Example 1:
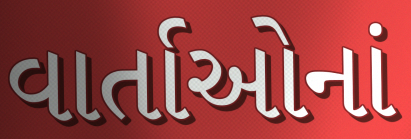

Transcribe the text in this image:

વાર્તાઓનાં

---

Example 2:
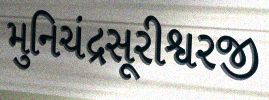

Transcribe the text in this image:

મુનિચંદ્રસૂરીશ્વરજી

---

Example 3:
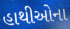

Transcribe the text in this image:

હાથીઓના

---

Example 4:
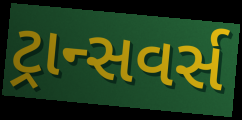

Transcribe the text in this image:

ટ્રાન્સવર્સ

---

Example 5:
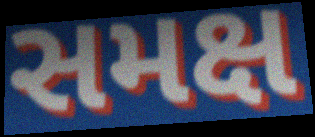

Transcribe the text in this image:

સમક્ષ